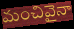
మంచివైనా